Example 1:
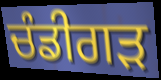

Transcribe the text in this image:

ਚੰਡੀਗੜ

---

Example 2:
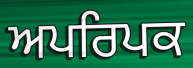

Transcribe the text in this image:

ਅਪਰਿਪਕ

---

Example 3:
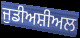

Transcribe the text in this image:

ਜੁਡੀਅਸ਼ੀਅਲ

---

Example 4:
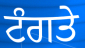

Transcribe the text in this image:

ਟੰਗਤੇ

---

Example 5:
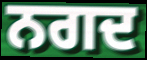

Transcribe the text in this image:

ਨਗਦ